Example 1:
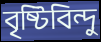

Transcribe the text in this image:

বৃষ্টিবিন্দু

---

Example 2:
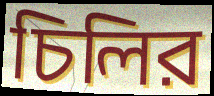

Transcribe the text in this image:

চিলির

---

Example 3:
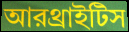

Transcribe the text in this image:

আরথ্রাইটিস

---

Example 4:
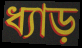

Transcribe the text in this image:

ধ্যাড়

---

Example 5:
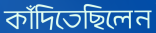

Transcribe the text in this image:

কাঁদিতেছিলেন